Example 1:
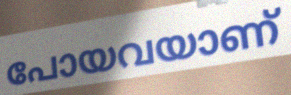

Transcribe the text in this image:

പോയവയാണ്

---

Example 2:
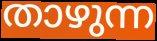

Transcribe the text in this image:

താഴുന്ന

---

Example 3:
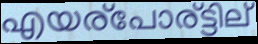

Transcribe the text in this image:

എയര്പോര്ട്ടില്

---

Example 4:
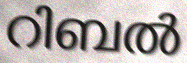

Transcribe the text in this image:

റിബൽ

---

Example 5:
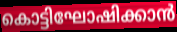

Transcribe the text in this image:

കൊട്ടിഘോഷിക്കാൻ